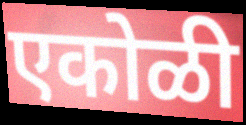
एकोळी